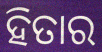
ହିତାର